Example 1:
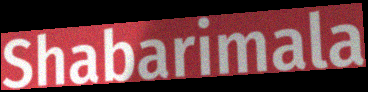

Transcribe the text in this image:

Shabarimala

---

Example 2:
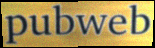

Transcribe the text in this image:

pubweb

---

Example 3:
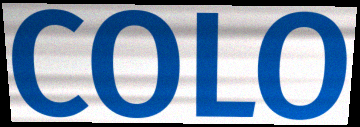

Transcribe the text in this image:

COLO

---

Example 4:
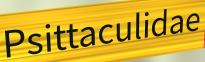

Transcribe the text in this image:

Psittaculidae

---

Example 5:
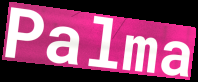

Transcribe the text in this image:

Palma